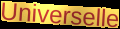
Universelle